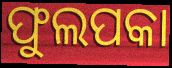
ଫୁଲପକା